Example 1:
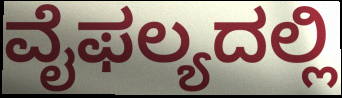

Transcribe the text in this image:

ವೈಫಲ್ಯದಲ್ಲಿ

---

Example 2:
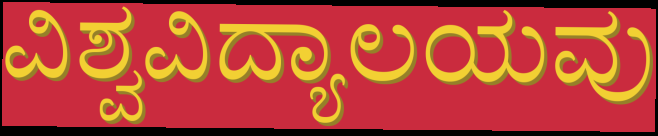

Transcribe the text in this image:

ವಿಶ್ವವಿದ್ಯಾಲಯವು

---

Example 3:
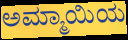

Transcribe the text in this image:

ಅಮ್ಮಾಯಿಯ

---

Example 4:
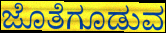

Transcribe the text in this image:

ಜೊತೆಗೂಡುವ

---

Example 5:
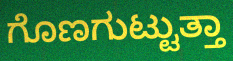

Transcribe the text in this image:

ಗೊಣಗುಟ್ಟುತ್ತಾ